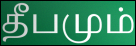
தீபமும்